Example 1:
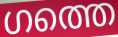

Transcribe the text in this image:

ഗത്തെ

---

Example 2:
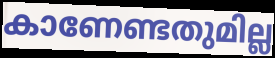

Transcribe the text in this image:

കാണേണ്ടതുമില്ല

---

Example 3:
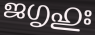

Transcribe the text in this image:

ജഗൃഹുഃ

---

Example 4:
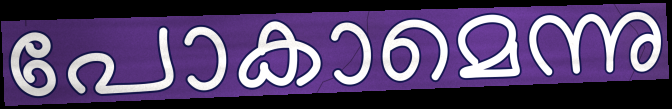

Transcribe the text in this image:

പോകാമെന്നു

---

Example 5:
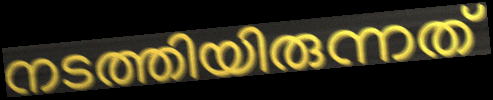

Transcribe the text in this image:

നടത്തിയിരുന്നത്